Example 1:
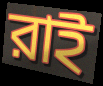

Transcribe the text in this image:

রাই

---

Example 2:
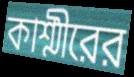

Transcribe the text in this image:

কাশ্মীরের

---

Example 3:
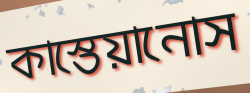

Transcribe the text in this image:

কাস্তেয়ানোস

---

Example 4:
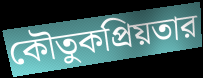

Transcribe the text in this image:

কৌতুকপ্রিয়তার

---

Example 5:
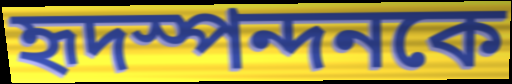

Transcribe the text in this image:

হৃদস্পন্দনকে